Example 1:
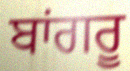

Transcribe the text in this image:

ਬਾਂਗਰੂ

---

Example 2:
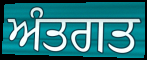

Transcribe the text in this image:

ਅੰਤਗਤ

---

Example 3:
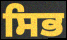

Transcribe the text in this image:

ਸਿਭ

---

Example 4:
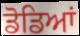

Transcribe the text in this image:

ਡੋਡਿਆਂ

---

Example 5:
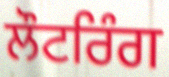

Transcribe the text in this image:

ਲੌਟਰਿੰਗ